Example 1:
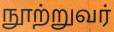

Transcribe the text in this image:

நூற்றுவர்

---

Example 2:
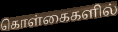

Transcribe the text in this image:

கொள்கைகளில்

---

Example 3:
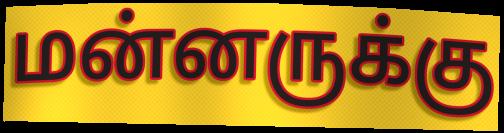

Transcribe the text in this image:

மன்னருக்கு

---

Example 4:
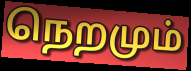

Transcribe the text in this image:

நெறமும்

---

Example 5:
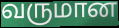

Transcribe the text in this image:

வருமான